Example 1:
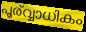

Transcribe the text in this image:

പൂര്വ്വാധികം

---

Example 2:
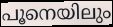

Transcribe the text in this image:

പൂനെയിലും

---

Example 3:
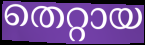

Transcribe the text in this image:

തെറ്റായ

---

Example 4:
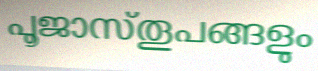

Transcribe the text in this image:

പൂജാസ്‌തൂപങ്ങളും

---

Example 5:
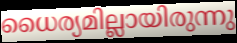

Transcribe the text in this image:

ധൈര്യമില്ലായിരുന്നു